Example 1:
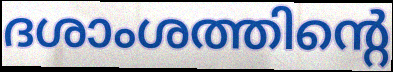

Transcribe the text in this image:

ദശാംശത്തിന്റെ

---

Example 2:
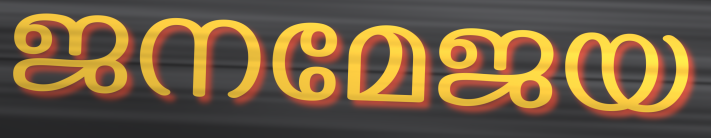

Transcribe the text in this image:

ജനമേജയ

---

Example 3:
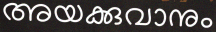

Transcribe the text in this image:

അയക്കുവാനും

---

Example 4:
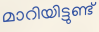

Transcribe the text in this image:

മാറിയിട്ടുണ്ട്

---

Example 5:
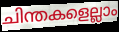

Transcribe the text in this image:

ചിന്തകളെല്ലാം